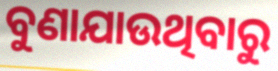
ବୁଣାଯାଉଥିବାରୁ